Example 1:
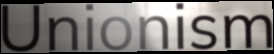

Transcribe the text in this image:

Unionism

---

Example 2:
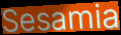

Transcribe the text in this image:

Sesamia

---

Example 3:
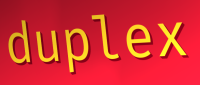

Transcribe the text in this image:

duplex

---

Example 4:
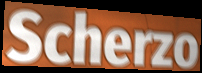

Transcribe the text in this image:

Scherzo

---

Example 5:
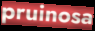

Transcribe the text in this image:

pruinosa